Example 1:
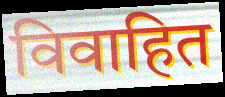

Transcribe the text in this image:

विवाहित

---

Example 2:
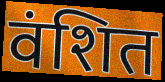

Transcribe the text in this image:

वंशित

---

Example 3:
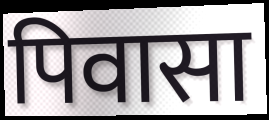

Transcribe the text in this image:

पिवासा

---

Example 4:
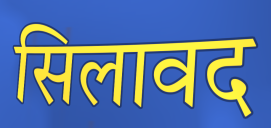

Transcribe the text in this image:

सिलावद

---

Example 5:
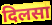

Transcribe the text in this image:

दिलसा